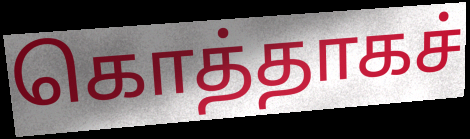
கொத்தாகச்